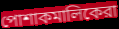
পোশাকমালিকেরা